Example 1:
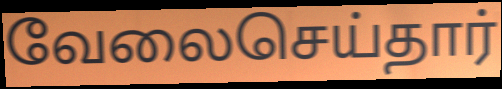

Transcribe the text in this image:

வேலைசெய்தார்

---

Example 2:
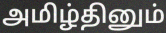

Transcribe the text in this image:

அமிழ்தினும்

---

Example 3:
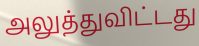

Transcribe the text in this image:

அலுத்துவிட்டது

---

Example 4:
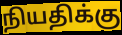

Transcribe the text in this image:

நியதிக்கு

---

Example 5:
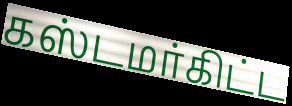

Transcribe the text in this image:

கஸ்டமர்கிட்ட